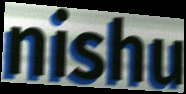
nishu